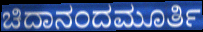
ಚಿದಾನಂದಮೂರ್ತಿ